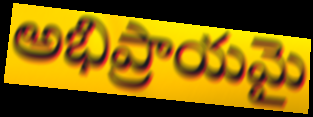
అభిప్రాయమై